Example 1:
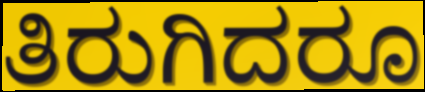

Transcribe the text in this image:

ತಿರುಗಿದರೂ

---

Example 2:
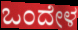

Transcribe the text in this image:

ಒಂದೇಳ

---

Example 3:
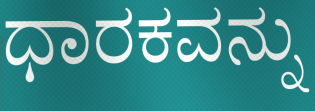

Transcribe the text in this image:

ಧಾರಕವನ್ನು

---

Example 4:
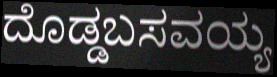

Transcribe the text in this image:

ದೊಡ್ಡಬಸವಯ್ಯ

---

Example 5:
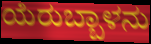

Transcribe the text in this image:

ಯೆರುಬ್ಬಾಳನು